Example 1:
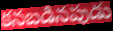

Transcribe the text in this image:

కనబడినపుడు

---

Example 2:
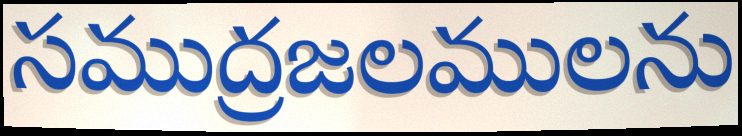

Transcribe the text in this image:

సముద్రజలములను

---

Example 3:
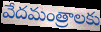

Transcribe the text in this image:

వేదమంత్రాలకు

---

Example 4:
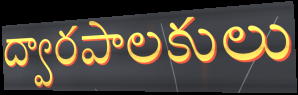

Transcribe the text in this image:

ద్వారపాలకులు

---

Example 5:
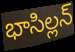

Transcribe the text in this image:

భాసిల్లన్